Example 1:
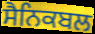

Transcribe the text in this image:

ਸੈਨਿਕਬਲ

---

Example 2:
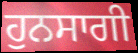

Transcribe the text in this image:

ਹੁਨਸਾਗੀ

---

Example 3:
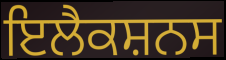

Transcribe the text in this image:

ਇਲੈਕਸ਼ਨਸ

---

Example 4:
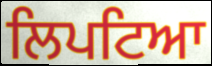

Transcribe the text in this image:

ਲਿਪਟਿਆ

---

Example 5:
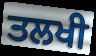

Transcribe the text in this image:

ਤਲਖੀ